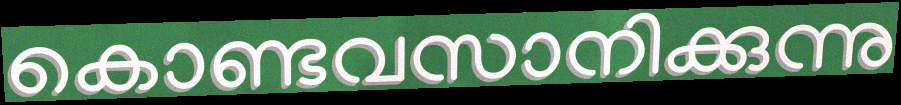
കൊണ്ടവസാനിക്കുന്നു